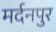
मर्दनपुर